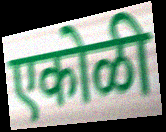
एकोळी